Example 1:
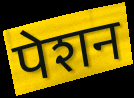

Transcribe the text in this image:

पेशन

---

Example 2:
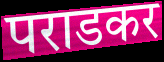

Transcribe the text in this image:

पराडकर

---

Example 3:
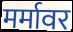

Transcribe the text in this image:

मर्मावर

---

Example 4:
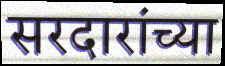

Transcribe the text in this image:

सरदारांच्या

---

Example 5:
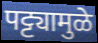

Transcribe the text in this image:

पट्ट्यामुळे